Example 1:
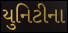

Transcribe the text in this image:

યુનિટીના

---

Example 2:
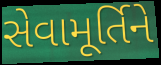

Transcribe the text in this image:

સેવામૂર્તિને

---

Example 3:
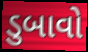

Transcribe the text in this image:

ડુબાવો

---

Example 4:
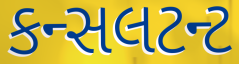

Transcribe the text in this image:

કન્સલટન્ટ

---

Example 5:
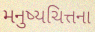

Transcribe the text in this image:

મનુષ્યચિત્તના